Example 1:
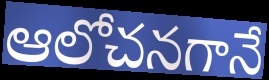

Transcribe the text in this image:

ఆలోచనగానే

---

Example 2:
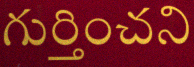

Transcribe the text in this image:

గుర్తించని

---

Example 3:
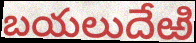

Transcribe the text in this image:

బయలుదేఱి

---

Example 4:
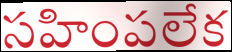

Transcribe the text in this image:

సహింపలేక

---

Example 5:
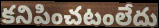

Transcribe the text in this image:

కనిపించటంలేదు